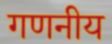
गणनीय